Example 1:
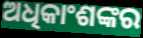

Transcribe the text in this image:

ଅଧିକାଂଶଙ୍କର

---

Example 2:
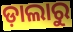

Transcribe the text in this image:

ଡ଼ାଲାରୁ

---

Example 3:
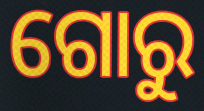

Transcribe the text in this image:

ଗୋରୁ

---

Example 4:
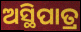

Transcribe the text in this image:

ଅସ୍ଥିପାତ୍ର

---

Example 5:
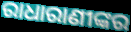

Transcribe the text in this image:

ରାଧାରାଣୀଙ୍କର